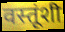
वस्तूंशी